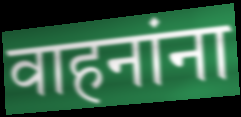
वाहनांना